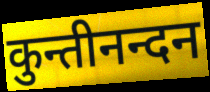
कुन्तीनन्दन